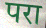
परा